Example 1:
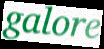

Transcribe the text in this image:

galore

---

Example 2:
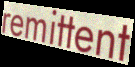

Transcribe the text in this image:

remittent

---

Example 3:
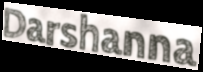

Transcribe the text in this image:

Darshanna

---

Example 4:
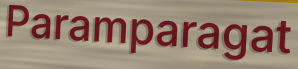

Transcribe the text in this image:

Paramparagat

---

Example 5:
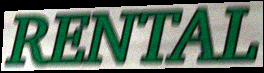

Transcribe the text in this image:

RENTAL